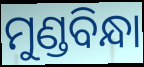
ମୁଣ୍ଡବିନ୍ଧା